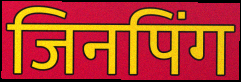
जिनपिंग